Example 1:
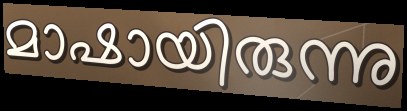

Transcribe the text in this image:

മാഷായിരുന്നു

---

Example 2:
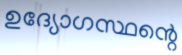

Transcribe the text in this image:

ഉദ്യോഗസ്ഥന്റെ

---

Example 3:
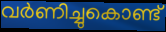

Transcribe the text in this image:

വർണിച്ചുകൊണ്ട്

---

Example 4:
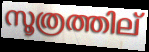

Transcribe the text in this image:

സൂത്രത്തില്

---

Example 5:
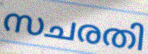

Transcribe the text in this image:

സചരതി